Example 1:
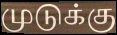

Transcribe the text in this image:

முடுக்கு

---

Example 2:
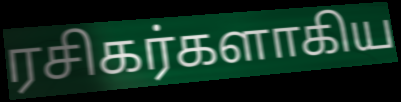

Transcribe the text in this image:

ரசிகர்களாகிய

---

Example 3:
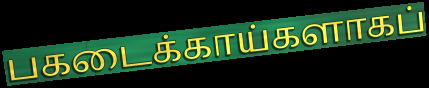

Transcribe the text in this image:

பகடைக்காய்களாகப்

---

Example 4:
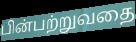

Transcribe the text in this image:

பின்பற்றுவதை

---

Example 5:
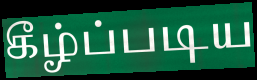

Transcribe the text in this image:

கீழ்ப்படிய